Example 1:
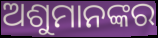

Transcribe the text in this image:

ଅଶୁମାନଙ୍କର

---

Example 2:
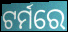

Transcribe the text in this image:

ଟର୍ମରେ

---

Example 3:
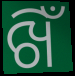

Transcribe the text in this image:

ଖିଁ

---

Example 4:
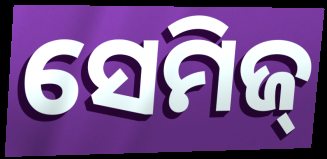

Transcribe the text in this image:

ସେମିଜ୍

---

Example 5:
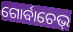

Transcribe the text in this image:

ଗୋର୍ବାଚେଭ୍